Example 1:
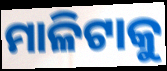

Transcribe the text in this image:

ମାଳିଟାକୁ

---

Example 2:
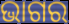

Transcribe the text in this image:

ଭାଗର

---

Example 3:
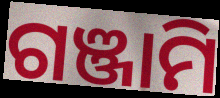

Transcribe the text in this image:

ଗଞ୍ଜାମି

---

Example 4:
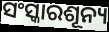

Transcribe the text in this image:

ସଂସ୍କାରଶୂନ୍ୟ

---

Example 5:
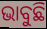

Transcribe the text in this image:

ଭାବୁଛି